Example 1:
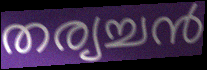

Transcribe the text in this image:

തര്യച്ചൻ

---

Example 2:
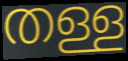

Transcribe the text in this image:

തള്ള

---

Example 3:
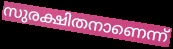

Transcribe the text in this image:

സുരക്ഷിതനാണെന്ന്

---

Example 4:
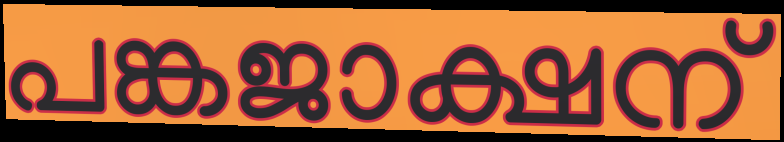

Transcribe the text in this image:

പങ്കജാക്ഷന്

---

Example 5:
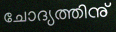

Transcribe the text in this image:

ചോദ്യത്തിനു്